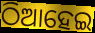
ଠିଆହେଇ